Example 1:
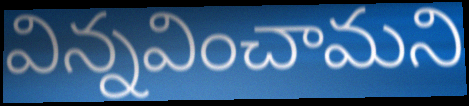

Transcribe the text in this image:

విన్నవించామని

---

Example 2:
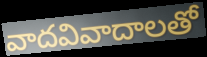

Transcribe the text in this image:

వాదవివాదాలతో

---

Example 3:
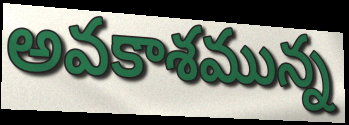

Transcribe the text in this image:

అవకాశమున్న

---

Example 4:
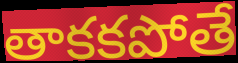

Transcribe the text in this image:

తాకకపోతే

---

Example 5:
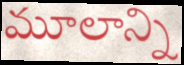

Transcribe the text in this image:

మూలాన్ని